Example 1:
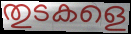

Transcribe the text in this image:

തുടകളെ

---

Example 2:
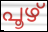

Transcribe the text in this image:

പൂഴ്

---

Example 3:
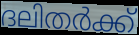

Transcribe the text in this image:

ദലിതർക്ക്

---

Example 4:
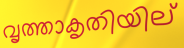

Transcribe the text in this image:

വൃത്താകൃതിയില്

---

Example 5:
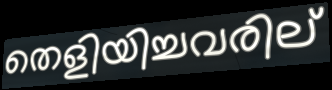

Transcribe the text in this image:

തെളിയിച്ചവരില്